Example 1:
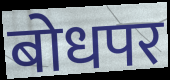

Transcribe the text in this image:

बोधपर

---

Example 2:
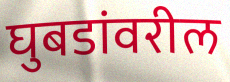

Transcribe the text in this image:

घुबडांवरील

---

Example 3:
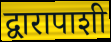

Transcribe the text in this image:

द्वारापाशी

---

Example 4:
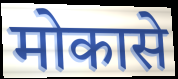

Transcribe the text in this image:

मोकासे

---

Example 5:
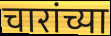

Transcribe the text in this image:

चारांच्या